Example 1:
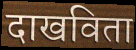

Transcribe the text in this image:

दाखविता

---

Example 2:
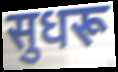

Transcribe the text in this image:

सुधरू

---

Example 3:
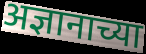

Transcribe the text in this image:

अज्ञानाच्या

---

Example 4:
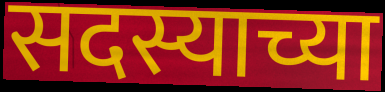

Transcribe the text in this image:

सदस्याच्या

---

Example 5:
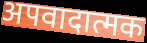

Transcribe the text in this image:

अपवादात्मक